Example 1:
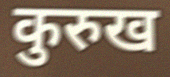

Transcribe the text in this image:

कुरुख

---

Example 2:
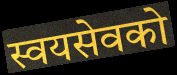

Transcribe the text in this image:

स्वयसेवको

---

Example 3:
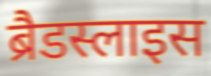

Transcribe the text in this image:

ब्रैडस्लाइस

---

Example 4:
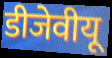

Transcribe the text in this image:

डीजेवीयू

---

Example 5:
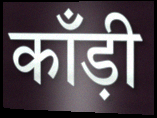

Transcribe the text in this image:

काँड़ी